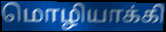
மொழியாக்கி